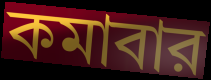
কমাবার